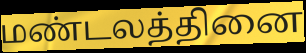
மண்டலத்தினை